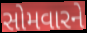
સોમવારને